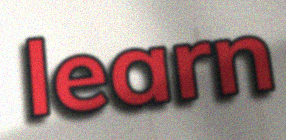
learn